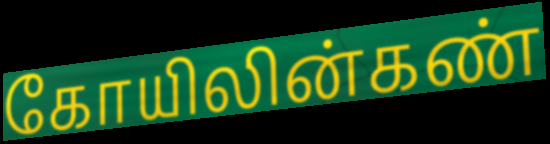
கோயிலின்கண்